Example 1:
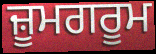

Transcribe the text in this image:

ਜ਼ੂਮਗਰੂਮ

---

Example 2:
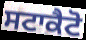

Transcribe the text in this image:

ਸਟਾਕੈਟੋ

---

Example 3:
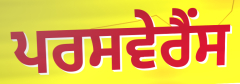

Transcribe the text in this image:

ਪਰਸਵੇਰੈਂਸ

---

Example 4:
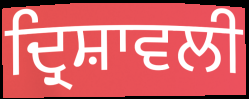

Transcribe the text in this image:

ਦ੍ਰਿਸ਼ਾਵਲੀ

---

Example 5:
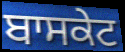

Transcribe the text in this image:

ਬਾਸਕੇਟ